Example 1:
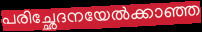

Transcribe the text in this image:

പരിച്ഛേദനയേൽക്കാഞ്ഞ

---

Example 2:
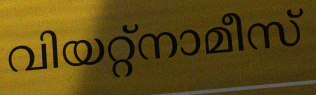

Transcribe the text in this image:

വിയറ്റ്നാമീസ്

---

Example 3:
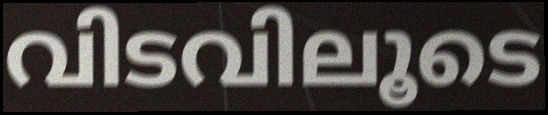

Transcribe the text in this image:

വിടവിലൂടെ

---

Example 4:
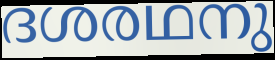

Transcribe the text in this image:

ദശരഥനു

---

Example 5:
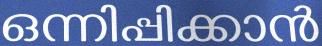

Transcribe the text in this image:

ഒന്നിപ്പിക്കാൻ